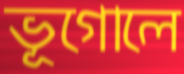
ভূগোলে